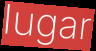
lugar